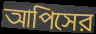
আপিসের